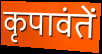
कृपावंतें